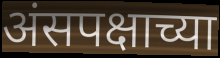
अंसपक्षाच्या